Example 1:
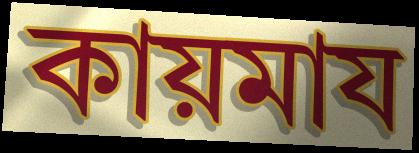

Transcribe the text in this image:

কায়মায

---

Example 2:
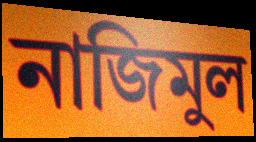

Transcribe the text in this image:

নাজিমুল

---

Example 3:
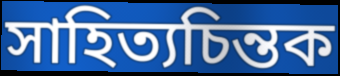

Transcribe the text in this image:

সাহিত্যচিন্তক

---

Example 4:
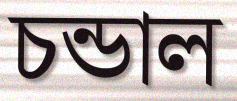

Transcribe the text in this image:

চন্ডাল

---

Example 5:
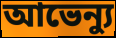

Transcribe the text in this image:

আভেন্যু